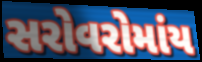
સરોવરોમાંય